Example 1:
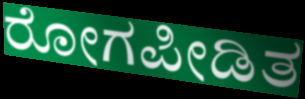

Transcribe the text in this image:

ರೋಗಪೀಡಿತ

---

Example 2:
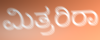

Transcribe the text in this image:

ಮಿತ್ರರಿರಾ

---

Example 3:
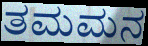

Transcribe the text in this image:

ತಮಮನ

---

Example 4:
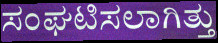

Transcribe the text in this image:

ಸಂಘಟಿಸಲಾಗಿತ್ತು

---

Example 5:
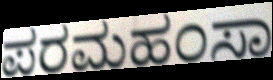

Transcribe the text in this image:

ಪರಮಹಂಸಾ